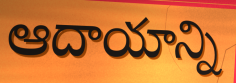
ఆదాయాన్ని